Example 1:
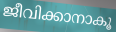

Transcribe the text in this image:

ജീവിക്കാനാകൂ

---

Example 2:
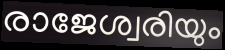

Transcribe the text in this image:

രാജേശ്വരിയും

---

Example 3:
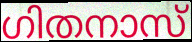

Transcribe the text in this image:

ഗിതനാസ്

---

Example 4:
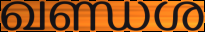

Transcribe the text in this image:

ഖണ്ഡശ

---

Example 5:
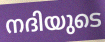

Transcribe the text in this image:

നദിയുടെ